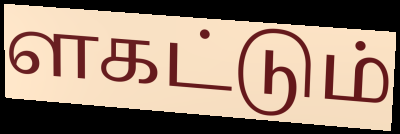
ளகட்டும்